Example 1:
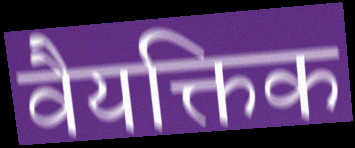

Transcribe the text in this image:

वैयक्तिक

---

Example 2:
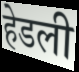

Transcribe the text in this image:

हेडली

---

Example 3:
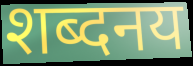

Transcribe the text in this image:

शब्दनय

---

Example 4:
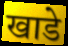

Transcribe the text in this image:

खाडे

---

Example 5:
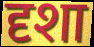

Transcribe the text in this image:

दृशा